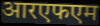
आरएफएम